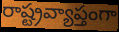
రాష్ట్రవ్యాప్తంగా